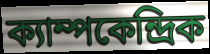
ক্যাম্পকেন্দ্রিক